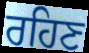
ਰਹਿਣ